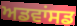
ਅਡਵਾਂਸਡ